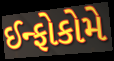
ઈન્ફોકોમે